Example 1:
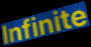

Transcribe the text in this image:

Infinite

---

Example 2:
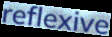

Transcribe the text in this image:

reflexive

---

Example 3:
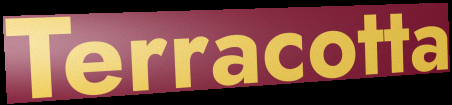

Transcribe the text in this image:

Terracotta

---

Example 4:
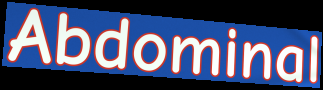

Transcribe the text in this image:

Abdominal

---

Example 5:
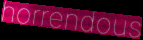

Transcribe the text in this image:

horrendous